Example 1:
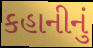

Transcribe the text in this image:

કહાનીનું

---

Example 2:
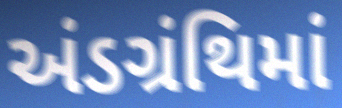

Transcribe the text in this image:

અંડગ્રંથિમાં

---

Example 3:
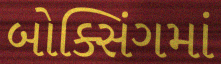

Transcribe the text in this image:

બોક્સિંગમાં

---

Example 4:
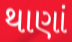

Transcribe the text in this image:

થાણાં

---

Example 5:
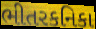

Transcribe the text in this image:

ભીતરકનિકા